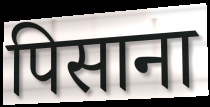
पिसाना